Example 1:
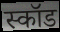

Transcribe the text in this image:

स्कॉड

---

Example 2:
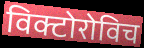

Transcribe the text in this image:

विक्टोरोविच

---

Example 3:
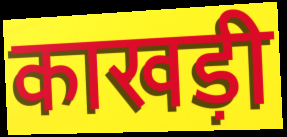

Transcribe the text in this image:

काखड़ी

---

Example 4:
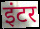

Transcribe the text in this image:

इंटर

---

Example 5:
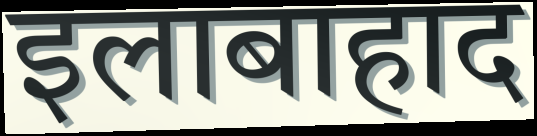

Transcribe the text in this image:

इलाबाहाद